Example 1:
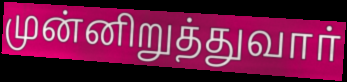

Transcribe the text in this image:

முன்னிறுத்துவார்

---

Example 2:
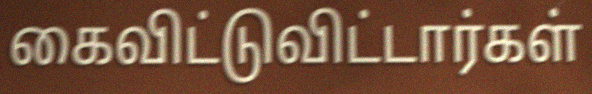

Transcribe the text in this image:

கைவிட்டுவிட்டார்கள்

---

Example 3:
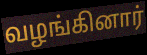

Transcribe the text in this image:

வழங்கினார்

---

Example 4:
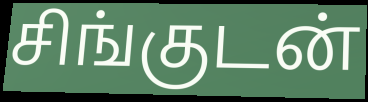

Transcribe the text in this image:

சிங்குடன்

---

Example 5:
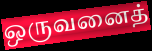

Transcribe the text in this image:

ஒருவனைத்